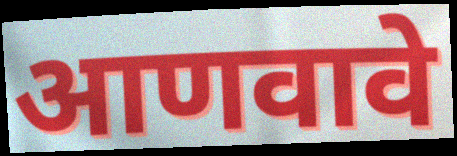
आणवावे